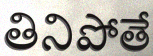
తినిపోతే